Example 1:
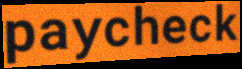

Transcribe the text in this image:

paycheck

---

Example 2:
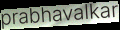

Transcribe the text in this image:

prabhavalkar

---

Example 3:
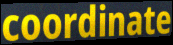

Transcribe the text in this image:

coordinate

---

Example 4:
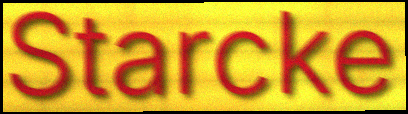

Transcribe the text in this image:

Starcke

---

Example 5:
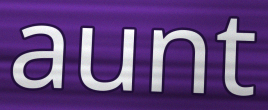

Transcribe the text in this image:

aunt